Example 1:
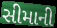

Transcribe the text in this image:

સીમાની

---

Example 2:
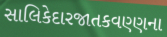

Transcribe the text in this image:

સાલિકેદારજાતકવણ્ણના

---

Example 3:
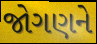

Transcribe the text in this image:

જોગણને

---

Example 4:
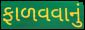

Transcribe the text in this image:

ફાળવવાનું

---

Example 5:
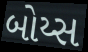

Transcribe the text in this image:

બોય્સ